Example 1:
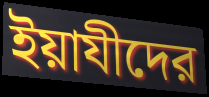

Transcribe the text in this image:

ইয়াযীদের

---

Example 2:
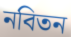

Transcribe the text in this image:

নবিতন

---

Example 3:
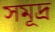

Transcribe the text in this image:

সমূদ্র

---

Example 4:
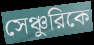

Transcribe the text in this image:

সেঞ্চুরিকে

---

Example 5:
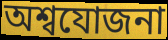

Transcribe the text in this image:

অশ্বযোজনা